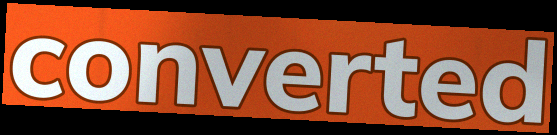
converted